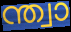
ന്ത്വാ